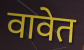
वावेत